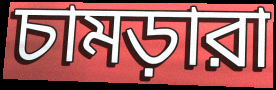
চামড়ারা